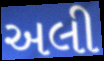
અલી